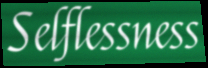
Selflessness